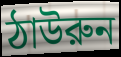
ঠাউরুন